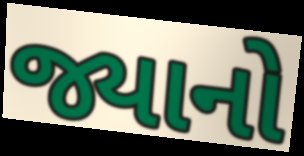
જ્યાનો